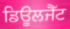
ਡਿਊਲਜੈੱਟ